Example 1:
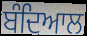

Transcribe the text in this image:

ਬੰਦਿਆਲ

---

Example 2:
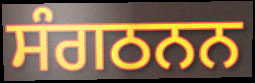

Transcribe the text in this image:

ਸੰਗਠਨਨ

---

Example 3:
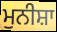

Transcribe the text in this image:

ਮੁਨੀਸ਼ਾ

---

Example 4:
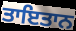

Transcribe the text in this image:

ਤਾਇਤਾਨ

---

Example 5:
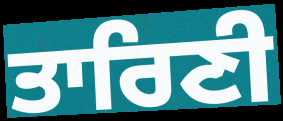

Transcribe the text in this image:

ਤਾਰਿਣੀ